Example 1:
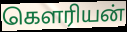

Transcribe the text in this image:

கௌரியன்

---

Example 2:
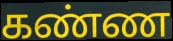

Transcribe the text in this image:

கண்ண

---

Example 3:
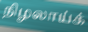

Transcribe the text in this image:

நிழலாய்க்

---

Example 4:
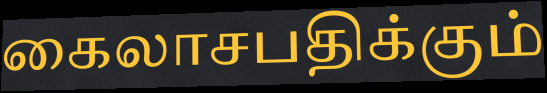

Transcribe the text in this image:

கைலாசபதிக்கும்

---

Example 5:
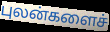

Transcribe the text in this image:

புலன்களைச்